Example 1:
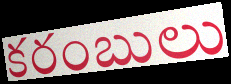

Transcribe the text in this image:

కరంబులు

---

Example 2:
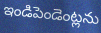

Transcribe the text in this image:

ఇండిపెండెంట్లను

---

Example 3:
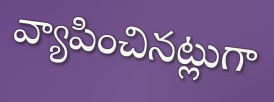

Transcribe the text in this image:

వ్యాపించినట్లుగా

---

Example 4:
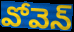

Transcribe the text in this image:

వోవెన్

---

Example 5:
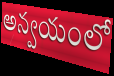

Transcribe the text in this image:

అన్వయంలో